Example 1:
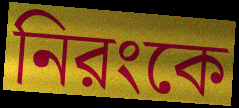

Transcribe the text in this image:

নিরংকে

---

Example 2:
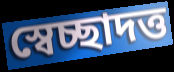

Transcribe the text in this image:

স্বেচ্ছাদত্ত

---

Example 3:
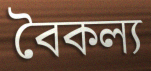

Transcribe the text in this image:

বৈকল্য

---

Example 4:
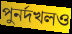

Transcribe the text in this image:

পুনর্দখলও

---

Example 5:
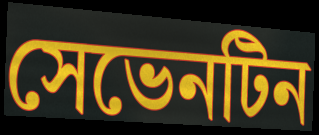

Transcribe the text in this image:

সেভেনটিন